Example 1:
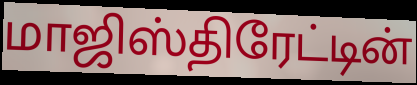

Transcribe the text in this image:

மாஜிஸ்திரேட்டின்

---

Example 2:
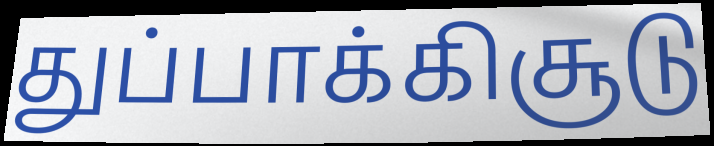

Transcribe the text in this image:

துப்பாக்கிசூடு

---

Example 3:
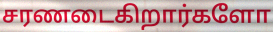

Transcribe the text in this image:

சரணடைகிறார்களோ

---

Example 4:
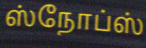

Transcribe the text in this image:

ஸ்நோப்ஸ்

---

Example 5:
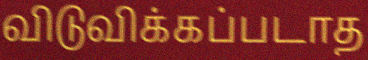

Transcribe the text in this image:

விடுவிக்கப்படாத